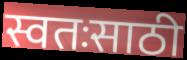
स्वतःसाठी